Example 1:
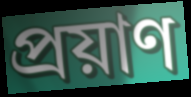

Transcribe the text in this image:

প্ৰয়াণ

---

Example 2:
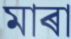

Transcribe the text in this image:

মাৰা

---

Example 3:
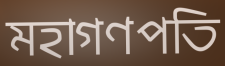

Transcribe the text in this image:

মহাগণপতি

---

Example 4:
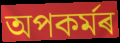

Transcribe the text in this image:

অপকৰ্মৰ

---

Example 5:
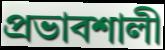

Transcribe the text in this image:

প্ৰভাবশালী